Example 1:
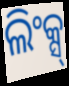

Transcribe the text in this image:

ଲିଂକ୍ସ୍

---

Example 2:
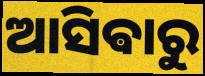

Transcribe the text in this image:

ଆସିଵାରୁ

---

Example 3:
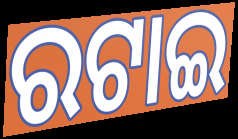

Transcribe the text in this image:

ରଟାଇ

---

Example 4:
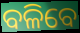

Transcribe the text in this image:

ବଳିବେ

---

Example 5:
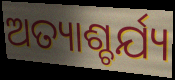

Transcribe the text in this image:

ଅତ୍ୟାଶ୍ଚର୍ଯ୍ୟ